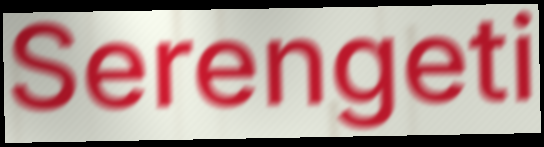
Serengeti